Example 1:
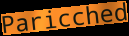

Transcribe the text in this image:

Paricched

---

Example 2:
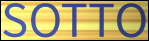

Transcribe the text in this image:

SOTTO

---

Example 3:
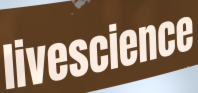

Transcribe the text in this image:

livescience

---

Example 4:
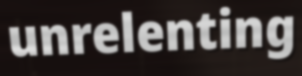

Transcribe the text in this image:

unrelenting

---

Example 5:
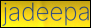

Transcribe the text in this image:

jadeepa